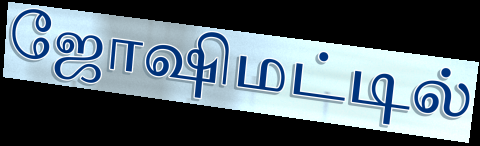
ஜோஷிமட்டில்